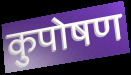
कुपोषण